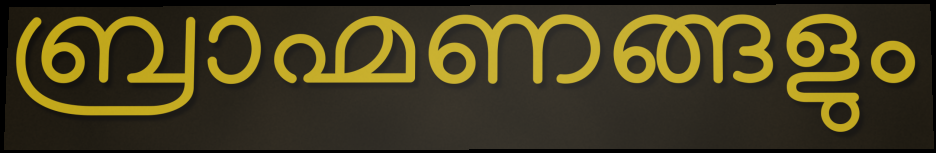
ബ്രാഹ്മണങ്ങളും